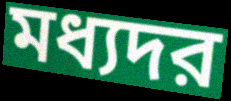
মধ্যদর